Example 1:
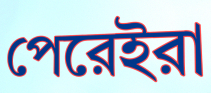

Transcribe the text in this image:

পেরেইরা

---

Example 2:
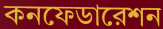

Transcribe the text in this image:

কনফেডারেশন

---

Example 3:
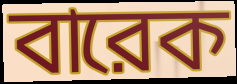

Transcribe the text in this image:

বারেক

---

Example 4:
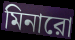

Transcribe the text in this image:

মিনারো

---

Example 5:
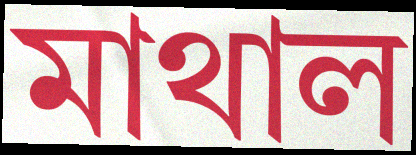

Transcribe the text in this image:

মাথাল